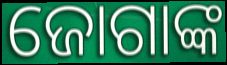
ଜୋଗାଙ୍କ